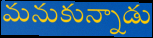
మనుకున్నాడు